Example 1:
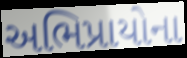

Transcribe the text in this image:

અભિપ્રાયોના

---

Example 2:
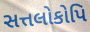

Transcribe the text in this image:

સત્તલોકોપિ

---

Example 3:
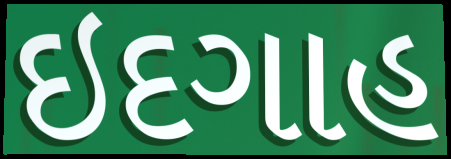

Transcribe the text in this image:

ઇદગાહ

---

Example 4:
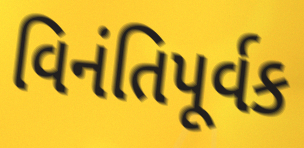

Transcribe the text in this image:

વિનંતિપૂર્વક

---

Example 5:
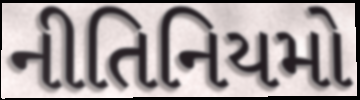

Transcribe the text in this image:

નીતિનિયમો